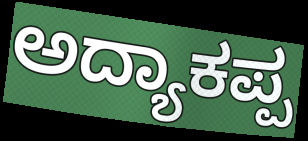
ಅದ್ಯಾಕಪ್ಪ